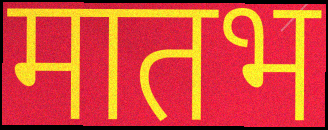
मातभ